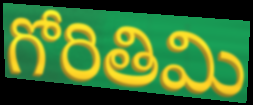
గోరితిమి